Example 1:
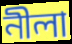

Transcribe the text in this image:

নীলা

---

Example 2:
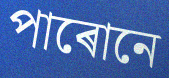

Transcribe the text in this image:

পাৰোনে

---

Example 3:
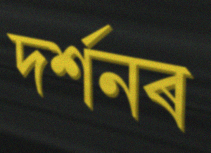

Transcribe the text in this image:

দৰ্শনৰ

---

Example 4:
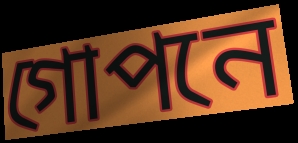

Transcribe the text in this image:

গোপনে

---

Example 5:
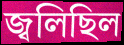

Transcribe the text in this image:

জ্বলিছিল